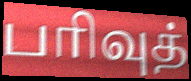
பரிவுத்